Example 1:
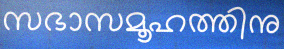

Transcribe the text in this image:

സഭാസമൂഹത്തിനു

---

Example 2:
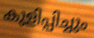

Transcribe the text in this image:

കുളിപ്പിച്ചും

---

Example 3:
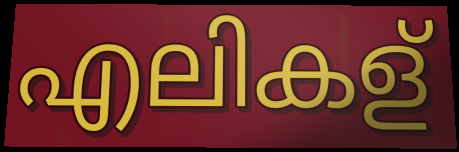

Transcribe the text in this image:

എലികള്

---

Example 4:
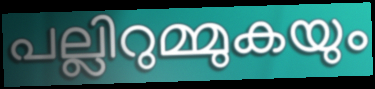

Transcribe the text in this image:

പല്ലിറുമ്മുകയും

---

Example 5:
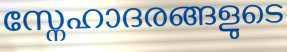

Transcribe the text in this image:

സ്നേഹാദരങ്ങളുടെ